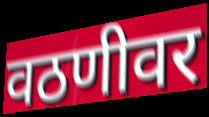
वठणीवर